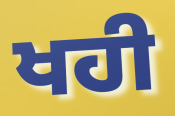
ਖਹੀ